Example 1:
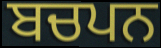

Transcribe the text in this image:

ਬਚਪਨ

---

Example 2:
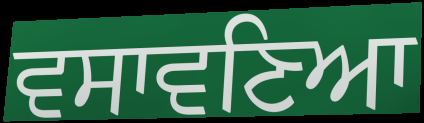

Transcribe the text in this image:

ਵਸਾਵਣਿਆ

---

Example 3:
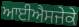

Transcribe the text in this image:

ਆਈਐਸਜੇਕੇ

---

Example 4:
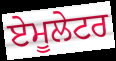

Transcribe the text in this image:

ਏਮੂਲੇਟਰ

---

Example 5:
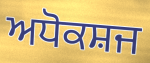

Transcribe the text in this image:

ਅਧੋਕਸ਼ਜ